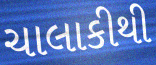
ચાલાકીથી